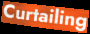
Curtailing